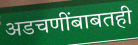
अडचणींबाबतही